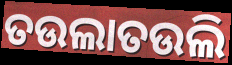
ତଉଲାତଉଲି